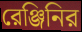
রেঞ্জিনির